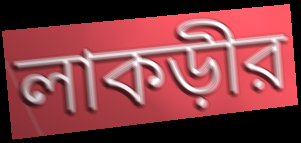
লাকড়ীর